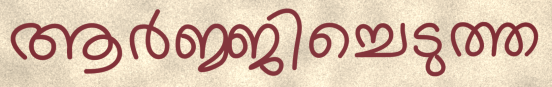
ആർജ്ജിച്ചെടുത്ത